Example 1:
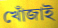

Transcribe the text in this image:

খোঁজাই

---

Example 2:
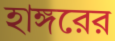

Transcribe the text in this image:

হাঙ্গরের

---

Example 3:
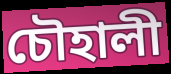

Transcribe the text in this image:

চৌহালী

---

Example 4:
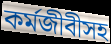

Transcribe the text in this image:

কর্মজীবীসহ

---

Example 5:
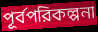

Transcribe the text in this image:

পূর্বপরিকল্পনা